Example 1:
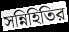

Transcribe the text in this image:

সন্নিহিতির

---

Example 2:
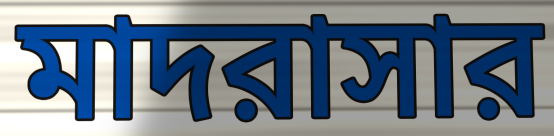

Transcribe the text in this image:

মাদরাসার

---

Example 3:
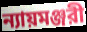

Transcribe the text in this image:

ন্যায়মঞ্জরী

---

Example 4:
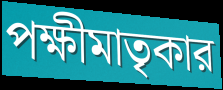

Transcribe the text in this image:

পক্ষীমাতৃকার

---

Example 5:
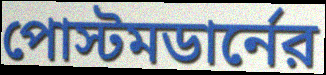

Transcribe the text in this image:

পোস্টমডার্নের